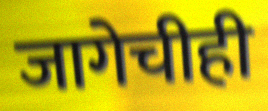
जागेचीही